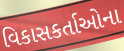
વિકાસકર્તાઓના